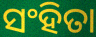
ସଂହିତା